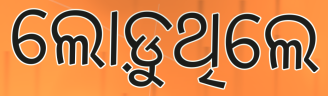
ଲୋଡ଼ୁଥିଲେ